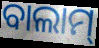
ବାଲାମ୍